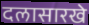
दलासारखे